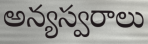
అన్యస్వరాలు